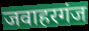
जवाहरगंज